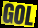
GOL